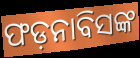
ଫଡ଼ନାବିସଙ୍କ